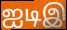
ஐடிஇ